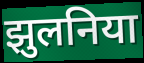
झुलनिया